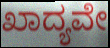
ಖಾದ್ಯವೇ